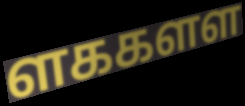
ளககளள